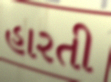
હારતી